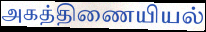
அகத்திணையியல்